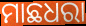
ମାଛଧରା